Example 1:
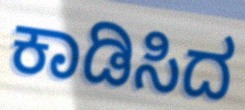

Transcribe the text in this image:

ಕಾಡಿಸಿದ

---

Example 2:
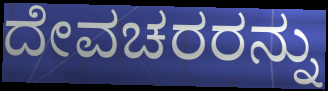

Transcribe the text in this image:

ದೇವಚರರನ್ನು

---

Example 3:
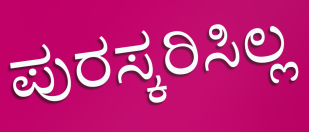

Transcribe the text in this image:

ಪುರಸ್ಕರಿಸಿಲ್ಲ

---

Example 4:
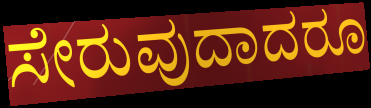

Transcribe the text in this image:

ಸೇರುವುದಾದರೂ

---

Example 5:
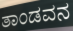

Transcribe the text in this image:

ತಾಂಡವನ